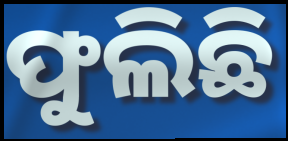
ଫୁଲିଛି